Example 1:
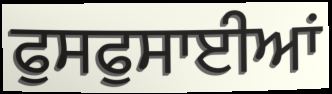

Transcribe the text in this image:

ਫੁਸਫੁਸਾਈਆਂ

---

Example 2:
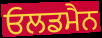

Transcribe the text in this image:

ਓਲਡਮੈਨ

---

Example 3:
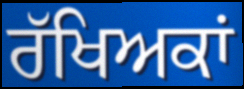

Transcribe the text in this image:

ਰੱਖਿਅਕਾਂ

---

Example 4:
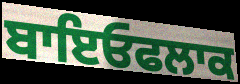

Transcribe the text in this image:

ਬਾਇਓਫਲਾਕ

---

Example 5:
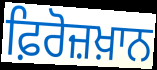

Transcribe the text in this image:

ਫ਼ਿਰੋਜ਼ਖ਼ਾਨ